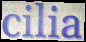
cilia